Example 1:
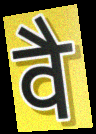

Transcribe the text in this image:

वै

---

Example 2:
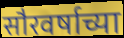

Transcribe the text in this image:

सौरवर्षाच्या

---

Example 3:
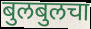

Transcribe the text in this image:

बुलबुलचा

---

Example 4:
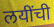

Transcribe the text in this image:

लयींची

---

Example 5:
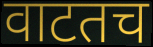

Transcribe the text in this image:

वाटतच